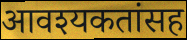
आवश्यकतांसह